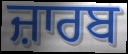
ਜ਼ਾਰਬ